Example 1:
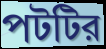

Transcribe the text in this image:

পটটির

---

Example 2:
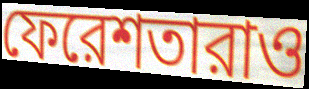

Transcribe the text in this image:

ফেরেশতারাও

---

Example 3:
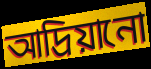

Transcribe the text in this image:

আদ্রিয়ানো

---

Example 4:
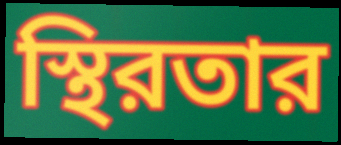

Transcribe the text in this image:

স্থিরতার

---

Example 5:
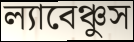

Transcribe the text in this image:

ল্যাবেঞ্চুস